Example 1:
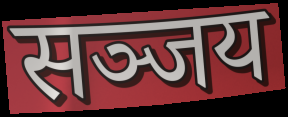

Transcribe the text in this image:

सञ्जय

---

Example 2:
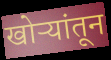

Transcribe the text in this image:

खोऱ्यांतून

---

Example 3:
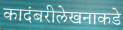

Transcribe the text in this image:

कादंबरीलेखनाकडे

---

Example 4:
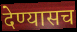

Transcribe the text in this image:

देण्यासच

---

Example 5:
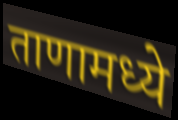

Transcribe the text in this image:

ताणामध्ये